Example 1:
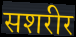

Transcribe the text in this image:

सशरीर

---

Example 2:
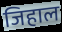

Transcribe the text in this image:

जिहाल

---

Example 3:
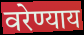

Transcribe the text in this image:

वरेण्याय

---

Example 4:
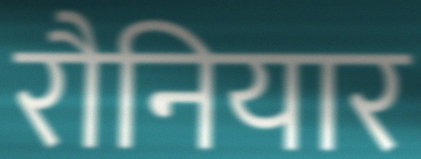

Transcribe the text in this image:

रौनियार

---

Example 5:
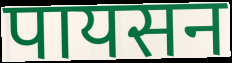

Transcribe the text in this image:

पायसन